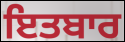
ਇਤਬਾਰ